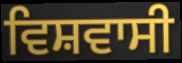
ਵਿਸ਼ਵਾਸੀ